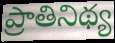
ప్రాతినిథ్య